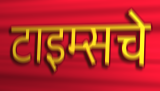
टाइम्सचे